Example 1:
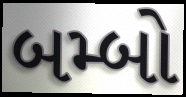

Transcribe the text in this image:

બમ્બો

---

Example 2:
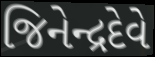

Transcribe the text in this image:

જિનેન્દ્રદેવે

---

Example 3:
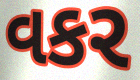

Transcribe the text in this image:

વકર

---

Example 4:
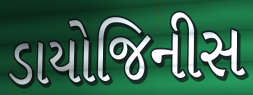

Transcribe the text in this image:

ડાયોજિનીસ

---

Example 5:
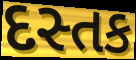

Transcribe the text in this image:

દસ્તક